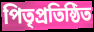
পিতৃপ্রতিষ্ঠিত